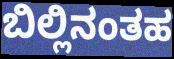
ಬಿಲ್ಲಿನಂತಹ